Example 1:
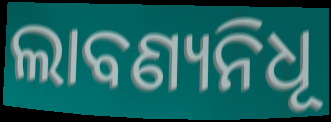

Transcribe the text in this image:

ଲାବଣ୍ୟନିଧୂ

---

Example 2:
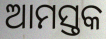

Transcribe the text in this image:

ଆମସ୍ତକ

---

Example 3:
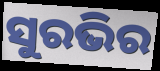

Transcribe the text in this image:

ସୁରଭିର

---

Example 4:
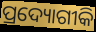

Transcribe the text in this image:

ପ୍ରଦ୍ୟୋଗୀକି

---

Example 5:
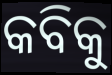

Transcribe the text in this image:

କବିକୁ